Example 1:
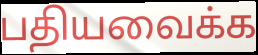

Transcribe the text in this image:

பதியவைக்க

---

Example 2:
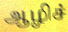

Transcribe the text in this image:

ஆழிச்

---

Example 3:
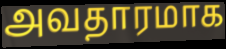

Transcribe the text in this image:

அவதாரமாக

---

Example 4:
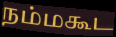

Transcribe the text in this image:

நம்மகூட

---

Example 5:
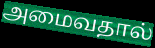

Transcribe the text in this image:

அமைவதால்